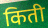
किती